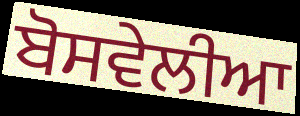
ਬੋਸਵੇਲੀਆ